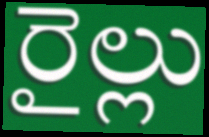
రైల్లు